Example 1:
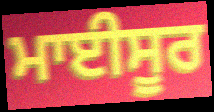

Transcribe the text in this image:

ਮਾਈਸੂਰ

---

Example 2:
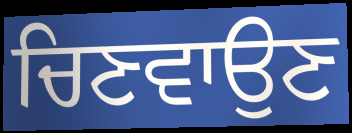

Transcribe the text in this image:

ਚਿਣਵਾਉਣ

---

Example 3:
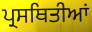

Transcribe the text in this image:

ਪ੍ਰਸਥਿਤੀਆਂ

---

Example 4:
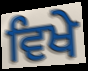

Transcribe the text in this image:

ਵਿਖੇ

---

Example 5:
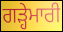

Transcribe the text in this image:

ਗੜ੍ਹੇਮਾਰੀ